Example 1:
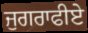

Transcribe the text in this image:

ਜੁਗਰਾਫੀਏ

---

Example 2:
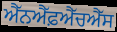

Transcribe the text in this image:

ਐੱਨਐੱਫ਼ਐੱਚਐੱਸ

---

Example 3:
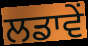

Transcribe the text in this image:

ਲਡਾਵੇਂ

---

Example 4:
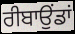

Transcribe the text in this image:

ਰੀਬਾਉਂਡਾਂ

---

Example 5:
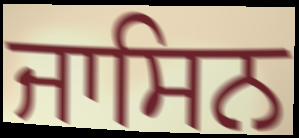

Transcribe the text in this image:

ਜਾਸਿਨ